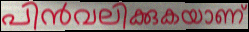
പിൻവലിക്കുകയാണ്